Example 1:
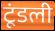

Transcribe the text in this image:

टूंडली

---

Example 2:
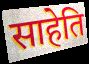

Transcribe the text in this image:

साहेति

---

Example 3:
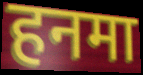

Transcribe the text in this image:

हनमा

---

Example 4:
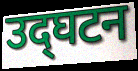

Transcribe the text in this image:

उद्घटन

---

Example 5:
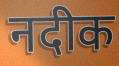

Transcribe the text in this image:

नदीक